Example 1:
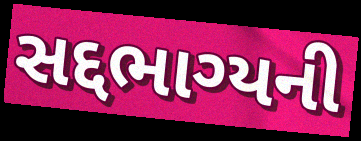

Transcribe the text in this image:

સદ્દભાગ્યની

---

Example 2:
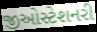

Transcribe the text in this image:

જીઓસ્ટેશનરી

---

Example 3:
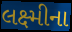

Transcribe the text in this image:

લક્ષ્મીના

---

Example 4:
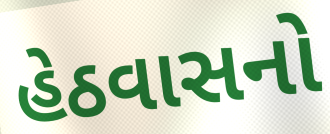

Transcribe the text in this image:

હેઠવાસનો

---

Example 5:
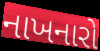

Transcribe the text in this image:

નાખનારો